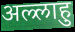
अल्लाहु